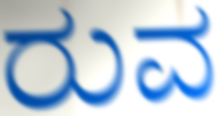
ರುವ